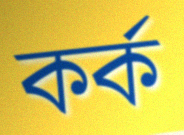
কর্ক